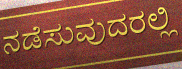
ನಡೆಸುವುದರಲ್ಲಿ